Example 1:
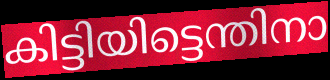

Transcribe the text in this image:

കിട്ടിയിട്ടെന്തിനാ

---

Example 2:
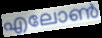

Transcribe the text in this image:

എലോൺ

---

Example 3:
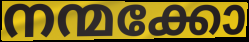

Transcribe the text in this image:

നന്മക്കോ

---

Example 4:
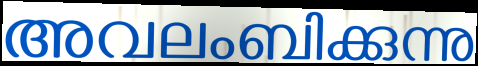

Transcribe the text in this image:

അവലംബിക്കുന്നു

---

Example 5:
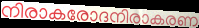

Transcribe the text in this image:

നിരാകരോദനിരാകരണ